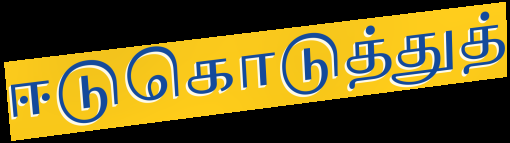
ஈடுகொடுத்துத்